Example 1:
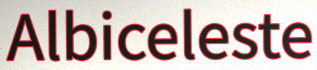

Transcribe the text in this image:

Albiceleste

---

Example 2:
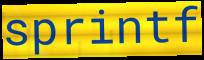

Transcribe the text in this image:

sprintf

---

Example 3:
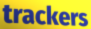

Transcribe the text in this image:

trackers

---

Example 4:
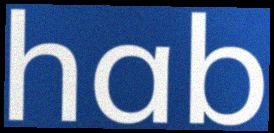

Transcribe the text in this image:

hab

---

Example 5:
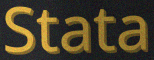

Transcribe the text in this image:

Stata